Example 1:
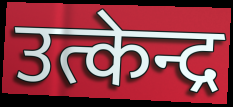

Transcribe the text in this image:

उत्केन्द्र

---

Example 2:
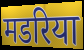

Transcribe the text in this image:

मडरिया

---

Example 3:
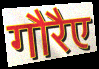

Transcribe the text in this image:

गौरैए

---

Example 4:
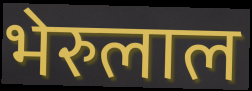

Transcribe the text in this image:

भेरुलाल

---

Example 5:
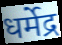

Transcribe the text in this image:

धर्मेद्र